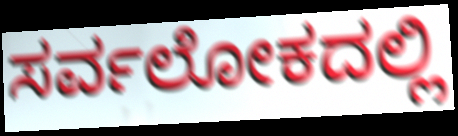
ಸರ್ವಲೋಕದಲ್ಲಿ